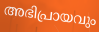
അഭിപ്രായവും